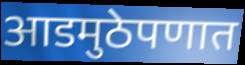
आडमुठेपणात